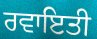
ਰਵਾਇਤੀ